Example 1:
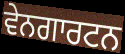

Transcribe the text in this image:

ਵੇਨਗਾਰਟਨ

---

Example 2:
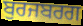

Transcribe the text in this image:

ਬੁਰਜਬਰਗ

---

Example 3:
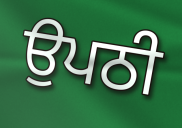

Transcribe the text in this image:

ਉਪਠੀ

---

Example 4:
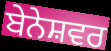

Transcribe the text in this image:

ਬੇਨੇਸ਼ਵਰ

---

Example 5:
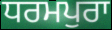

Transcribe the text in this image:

ਧਰਮਪੁਰਾ